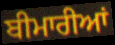
ਬੀਮਾਰੀਆਂ